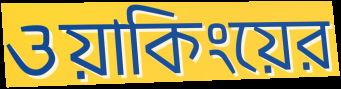
ওয়াকিংয়ের